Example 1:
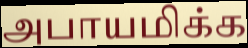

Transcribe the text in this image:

அபாயமிக்க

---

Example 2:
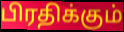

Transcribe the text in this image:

பிரதிக்கும்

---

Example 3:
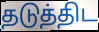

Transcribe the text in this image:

தடுத்திட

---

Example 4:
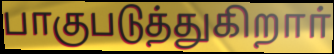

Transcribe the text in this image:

பாகுபடுத்துகிறார்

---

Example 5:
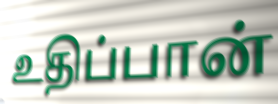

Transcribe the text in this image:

உதிப்பான்